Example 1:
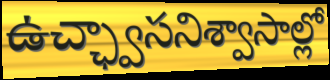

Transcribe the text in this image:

ఉచ్ఛ్వాసనిశ్వాసాల్లో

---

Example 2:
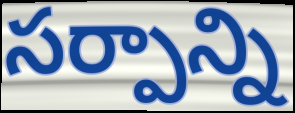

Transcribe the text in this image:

సర్పాన్ని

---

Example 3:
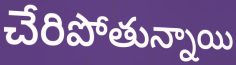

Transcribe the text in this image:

చేరిపోతున్నాయి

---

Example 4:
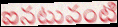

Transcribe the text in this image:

ఐనటువంటి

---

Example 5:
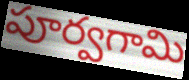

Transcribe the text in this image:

పూర్వగామి